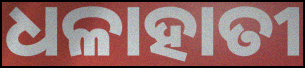
ଧଳାହାତୀ